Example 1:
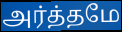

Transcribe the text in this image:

அர்த்தமே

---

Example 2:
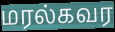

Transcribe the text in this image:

மரல்கவர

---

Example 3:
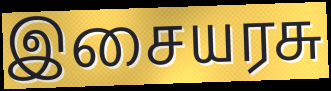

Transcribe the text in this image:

இசையரசு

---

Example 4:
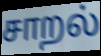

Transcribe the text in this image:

சாறல்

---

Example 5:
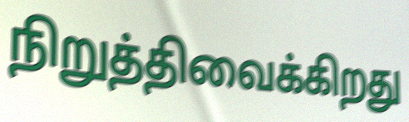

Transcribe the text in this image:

நிறுத்திவைக்கிறது